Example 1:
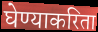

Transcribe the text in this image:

घेण्याकरिता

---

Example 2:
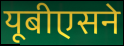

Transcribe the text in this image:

यूबीएसने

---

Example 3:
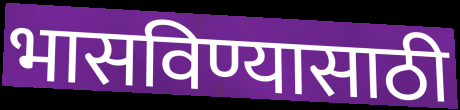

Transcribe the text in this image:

भासविण्यासाठी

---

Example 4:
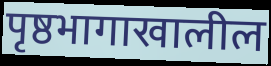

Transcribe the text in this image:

पृष्ठभागाखालील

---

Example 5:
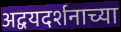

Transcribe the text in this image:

अद्वयदर्शनाच्या